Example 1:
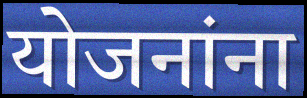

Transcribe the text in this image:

योजनांना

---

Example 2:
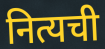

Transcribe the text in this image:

नित्यची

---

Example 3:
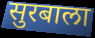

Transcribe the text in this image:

सुरबाला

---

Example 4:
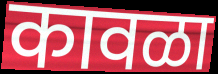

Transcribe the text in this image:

कावळा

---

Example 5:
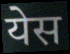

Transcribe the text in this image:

येस